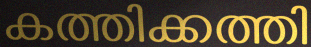
കത്തിക്കത്തി